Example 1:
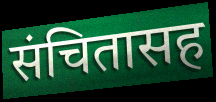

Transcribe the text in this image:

संचितासह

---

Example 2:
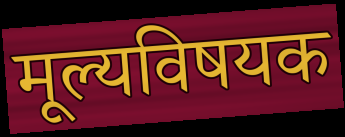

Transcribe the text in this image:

मूल्यविषयक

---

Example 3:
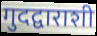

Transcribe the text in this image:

गुदद्वाराशी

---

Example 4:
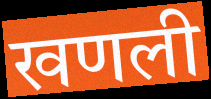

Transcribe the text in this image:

खणली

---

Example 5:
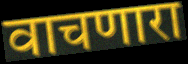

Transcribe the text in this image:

वाचणारा